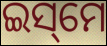
ଇସ୍‌ମେ